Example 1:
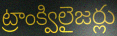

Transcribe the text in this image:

ట్రాంక్విలైజర్లు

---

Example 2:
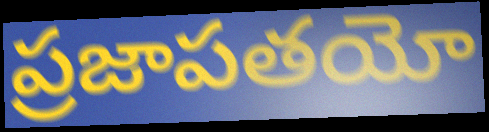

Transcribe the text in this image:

ప్రజాపతయో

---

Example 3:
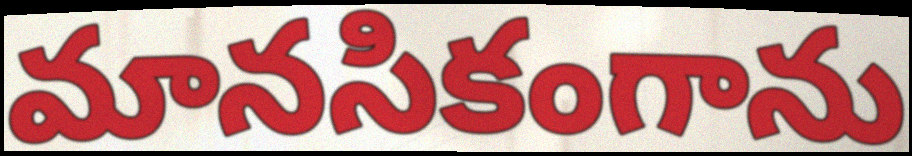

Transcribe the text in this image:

మానసికంగాను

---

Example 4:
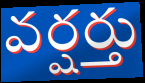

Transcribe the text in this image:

వర్షర్తు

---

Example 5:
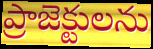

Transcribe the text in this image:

ప్రాజెక్టులను